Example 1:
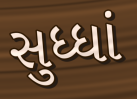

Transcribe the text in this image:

સુધ્ધાં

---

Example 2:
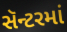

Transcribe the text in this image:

સૅન્ટરમાં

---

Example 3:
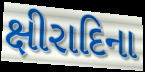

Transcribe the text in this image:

ક્ષીરાદિના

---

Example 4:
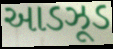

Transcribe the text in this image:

આડઝૂડ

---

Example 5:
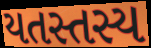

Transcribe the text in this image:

યતસ્તસ્ય